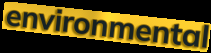
environmental